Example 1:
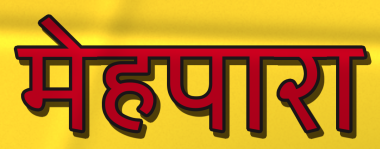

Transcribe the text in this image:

मेहपारा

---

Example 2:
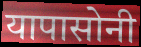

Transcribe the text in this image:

यापासोनी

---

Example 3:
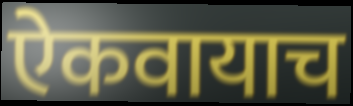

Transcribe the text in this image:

ऐकवायाच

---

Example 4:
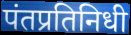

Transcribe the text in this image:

पंतप्रतिनिधी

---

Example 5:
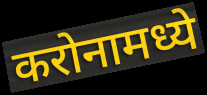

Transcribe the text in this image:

करोनामध्ये